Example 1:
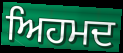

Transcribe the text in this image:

ਅਿਹਮਦ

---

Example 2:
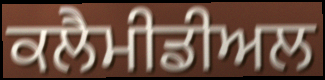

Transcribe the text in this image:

ਕਲੈਮੀਡੀਅਲ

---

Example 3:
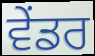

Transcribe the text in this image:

ਵੇਂਡਰ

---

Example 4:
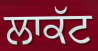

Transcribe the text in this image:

ਲਾਕੱਟ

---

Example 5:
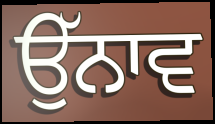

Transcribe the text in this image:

ਉੱਨਾਵ